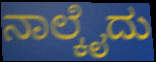
ನಾಲ್ಕೈದು